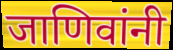
जाणिवांनी